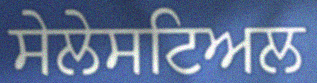
ਸੇਲੇਸਟਿਅਲ